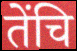
तेंचि